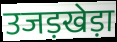
उजड़खेड़ा